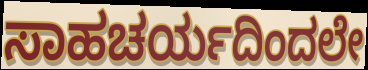
ಸಾಹಚರ್ಯದಿಂದಲೇ